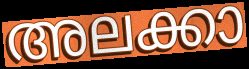
അലക്കാ